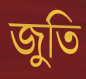
জুতি